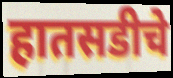
हातसडीचे